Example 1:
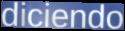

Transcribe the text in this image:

diciendo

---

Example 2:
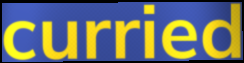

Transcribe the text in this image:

curried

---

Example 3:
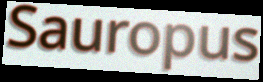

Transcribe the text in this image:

Sauropus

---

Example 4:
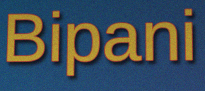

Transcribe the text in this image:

Bipani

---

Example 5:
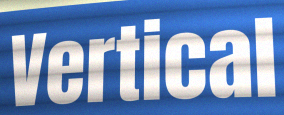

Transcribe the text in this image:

Vertical